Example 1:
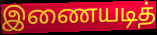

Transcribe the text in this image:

இணையடித்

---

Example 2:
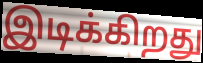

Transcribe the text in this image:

இடிக்கிறது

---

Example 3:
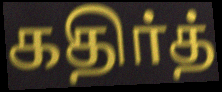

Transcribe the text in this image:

கதிர்த்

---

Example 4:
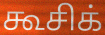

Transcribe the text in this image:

கூசிக்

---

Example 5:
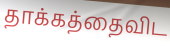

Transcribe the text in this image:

தாக்கத்தைவிட